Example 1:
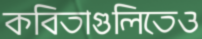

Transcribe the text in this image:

কবিতাগুলিতেও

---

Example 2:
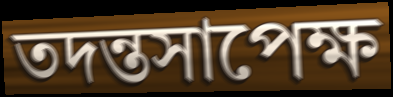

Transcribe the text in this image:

তদন্তসাপেক্ষ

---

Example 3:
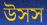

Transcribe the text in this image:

উসস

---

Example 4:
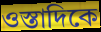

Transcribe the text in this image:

ওস্তাদিকে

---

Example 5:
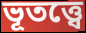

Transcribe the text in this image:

ভূতত্ত্বে